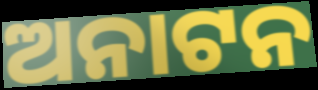
ଅନାଟନ